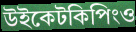
উইকেটকিপিংও